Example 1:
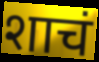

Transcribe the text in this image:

शाचं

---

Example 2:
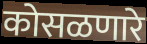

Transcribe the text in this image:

कोसळणारे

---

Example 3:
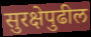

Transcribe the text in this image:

सुरक्षेपुढील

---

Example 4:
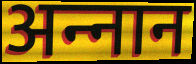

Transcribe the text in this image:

अन्नान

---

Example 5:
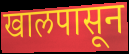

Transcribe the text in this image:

खालपासून